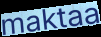
maktaa